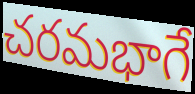
చరమభాగే